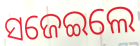
ସଜେଇଲେ